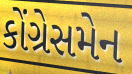
કોંગ્રેસમેન